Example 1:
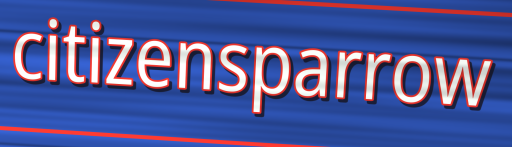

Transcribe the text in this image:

citizensparrow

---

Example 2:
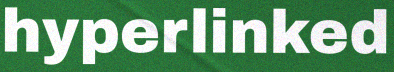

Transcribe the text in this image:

hyperlinked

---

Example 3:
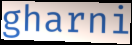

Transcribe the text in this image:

gharni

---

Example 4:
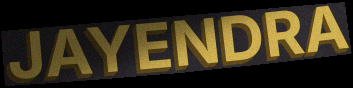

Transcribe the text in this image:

JAYENDRA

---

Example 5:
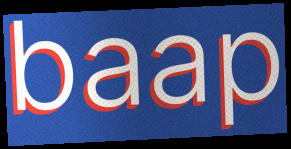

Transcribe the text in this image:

baap